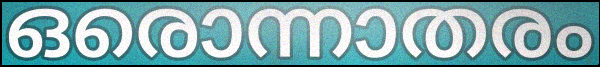
ഒരൊന്നാതരം